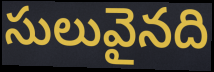
సులువైనది